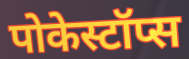
पोकेस्टॉप्स